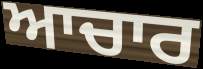
ਆਚਾਰ